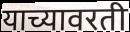
याच्यावरती